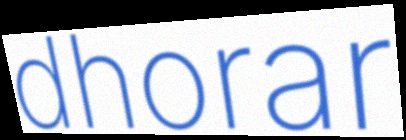
dhorar